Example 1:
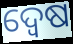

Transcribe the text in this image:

ଦ୍ବେଷ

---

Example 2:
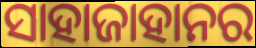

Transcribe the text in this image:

ସାହାଜାହାନର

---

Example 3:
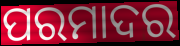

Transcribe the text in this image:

ପରମାଦର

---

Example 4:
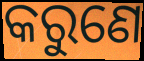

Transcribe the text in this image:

କରୁଣେ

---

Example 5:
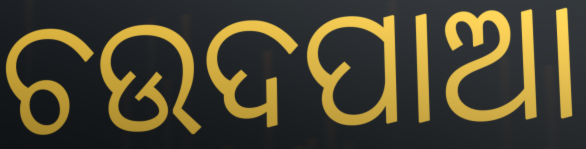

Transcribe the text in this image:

ଚଉଦପାଆ